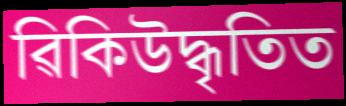
ৱিকিউদ্ধৃতিত